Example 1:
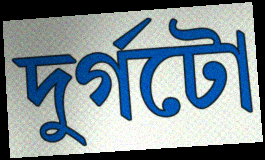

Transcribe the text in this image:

দুৰ্গটো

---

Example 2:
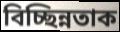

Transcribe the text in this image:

বিচ্ছিন্নতাক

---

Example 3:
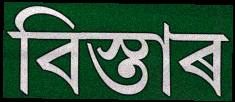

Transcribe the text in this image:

বিস্তাৰ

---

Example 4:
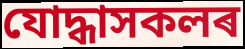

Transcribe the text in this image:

যোদ্ধাসকলৰ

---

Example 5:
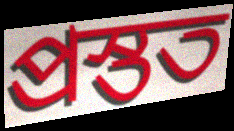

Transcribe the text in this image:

প্ৰস্তত